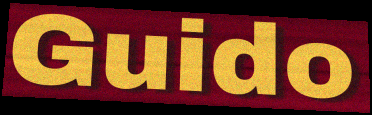
Guido